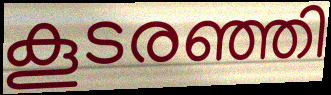
കൂടരഞ്ഞി